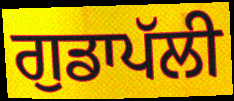
ਗੁਡਾਪੱਲੀ